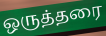
ஒருத்தரை